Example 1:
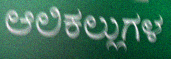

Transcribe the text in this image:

ಆಲಿಕಲ್ಲುಗಳ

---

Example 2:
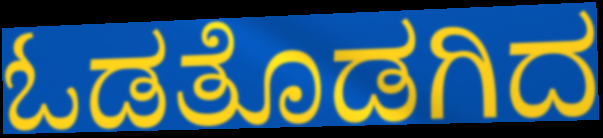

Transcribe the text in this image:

ಓಡತೊಡಗಿದ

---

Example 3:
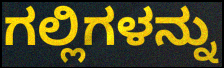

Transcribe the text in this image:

ಗಲ್ಲಿಗಳನ್ನು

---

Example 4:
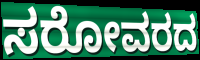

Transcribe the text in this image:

ಸರೋವರದ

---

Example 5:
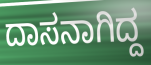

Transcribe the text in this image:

ದಾಸನಾಗಿದ್ದ